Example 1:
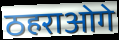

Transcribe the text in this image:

ठहराओगे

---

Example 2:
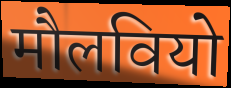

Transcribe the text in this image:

मौलवियो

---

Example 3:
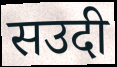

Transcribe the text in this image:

सउदी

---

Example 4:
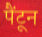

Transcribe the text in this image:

पैंटून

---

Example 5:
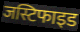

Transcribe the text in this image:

जस्टिफाइड